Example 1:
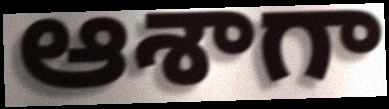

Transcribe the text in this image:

ఆశాగా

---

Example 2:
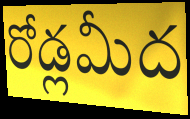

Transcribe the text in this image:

రోడ్లమీద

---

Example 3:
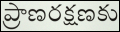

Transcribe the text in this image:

ప్రాణరక్షణకు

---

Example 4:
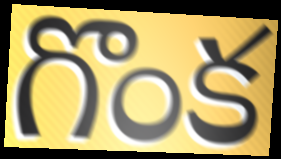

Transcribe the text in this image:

గొంక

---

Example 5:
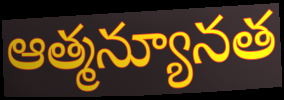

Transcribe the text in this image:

ఆత్మన్యూనత